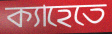
ক্যাহেতে